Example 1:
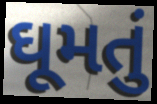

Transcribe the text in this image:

ઘૂમતું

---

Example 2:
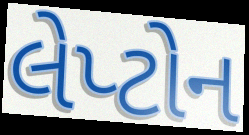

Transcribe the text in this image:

લેપ્ટોન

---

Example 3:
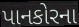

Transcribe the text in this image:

પાનકોરના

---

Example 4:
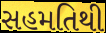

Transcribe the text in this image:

સહમતિથી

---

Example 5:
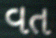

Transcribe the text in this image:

વત